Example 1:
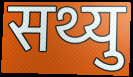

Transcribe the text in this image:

सथ्यु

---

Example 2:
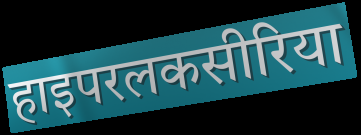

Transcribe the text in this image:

हाइपरलकसीरिया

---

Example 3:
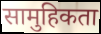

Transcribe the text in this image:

सामुहिकता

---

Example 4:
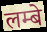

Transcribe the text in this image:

लम्बे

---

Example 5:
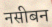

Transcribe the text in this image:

नसीबन